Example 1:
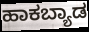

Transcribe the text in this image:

ಹಾಕಬ್ಯಾಡ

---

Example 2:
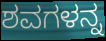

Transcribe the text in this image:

ಶವಗಳನ್ನ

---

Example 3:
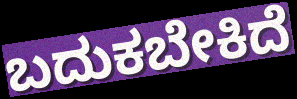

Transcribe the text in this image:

ಬದುಕಬೇಕಿದೆ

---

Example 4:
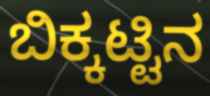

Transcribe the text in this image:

ಬಿಕ್ಕಟ್ಟಿನ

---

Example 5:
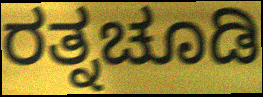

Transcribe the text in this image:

ರತ್ನಚೂಡಿ